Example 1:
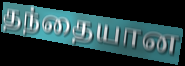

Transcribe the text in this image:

தந்தையான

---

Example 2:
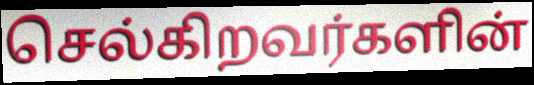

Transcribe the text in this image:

செல்கிறவர்களின்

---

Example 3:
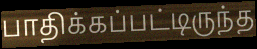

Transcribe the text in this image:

பாதிக்கப்பட்டிருந்த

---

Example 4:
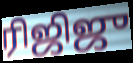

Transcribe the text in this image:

ரிஜிஜு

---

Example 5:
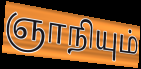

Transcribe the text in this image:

ஞாநியும்